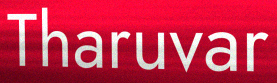
Tharuvar